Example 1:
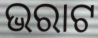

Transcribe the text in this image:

ଭରାଟ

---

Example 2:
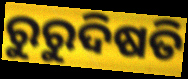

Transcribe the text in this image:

ରୁରୁଦିଷତି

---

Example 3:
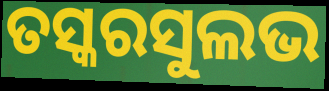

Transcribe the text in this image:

ତସ୍କରସୁଲଭ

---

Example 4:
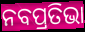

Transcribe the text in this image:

ନବପ୍ରତିଭା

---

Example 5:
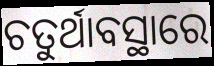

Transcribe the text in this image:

ଚତୁର୍ଥାବସ୍ଥାରେ